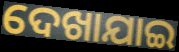
ଦେଖାଯାଇ